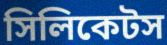
সিলিকেটস